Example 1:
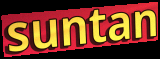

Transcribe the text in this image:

suntan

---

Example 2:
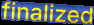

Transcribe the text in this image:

finalized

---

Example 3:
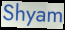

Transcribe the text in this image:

Shyam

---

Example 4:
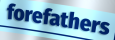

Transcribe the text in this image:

forefathers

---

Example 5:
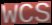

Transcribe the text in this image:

WCS